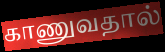
காணுவதால்